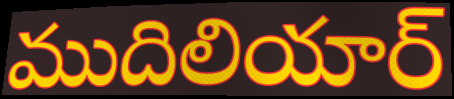
ముదిలియార్